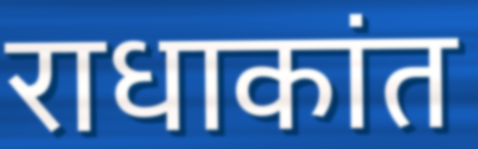
राधाकांत